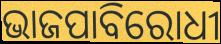
ଭାଜପାବିରୋଧୀ